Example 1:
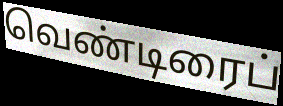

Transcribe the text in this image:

வெண்டிரைப்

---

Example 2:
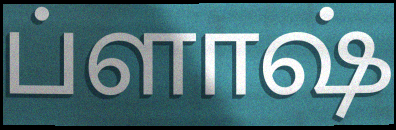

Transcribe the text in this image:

ப்ளாஷ்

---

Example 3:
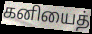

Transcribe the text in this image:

கனியைத்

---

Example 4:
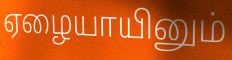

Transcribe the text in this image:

ஏழையாயினும்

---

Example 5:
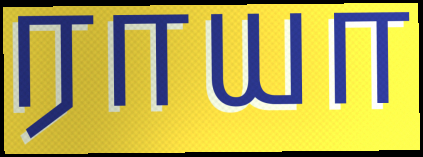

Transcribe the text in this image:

ராயா